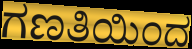
ಗಣತಿಯಿಂದ